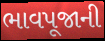
ભાવપૂજાની